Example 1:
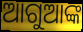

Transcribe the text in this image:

ଆଗୁଆଙ୍କ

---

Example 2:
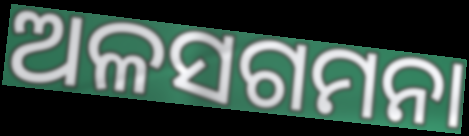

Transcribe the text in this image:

ଅଳସଗମନା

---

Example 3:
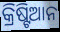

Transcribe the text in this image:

କ୍ରିଷ୍ଟିଆନ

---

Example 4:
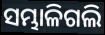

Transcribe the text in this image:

ସମ୍ଭାଳିଗଲି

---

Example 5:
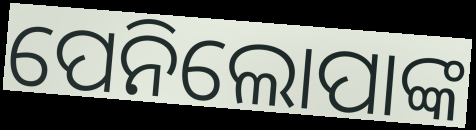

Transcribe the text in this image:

ପେନିଲୋପାଙ୍କ